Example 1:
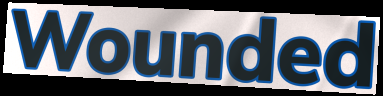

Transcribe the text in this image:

Wounded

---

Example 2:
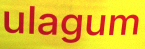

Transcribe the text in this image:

ulagum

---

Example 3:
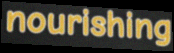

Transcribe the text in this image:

nourishing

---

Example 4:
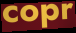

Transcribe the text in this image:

copr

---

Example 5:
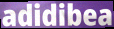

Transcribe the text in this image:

adidibea